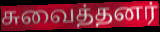
சுவைத்தனர்